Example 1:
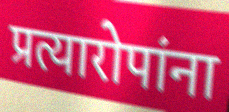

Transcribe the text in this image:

प्रत्यारोपांना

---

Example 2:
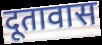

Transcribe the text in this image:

दूतावास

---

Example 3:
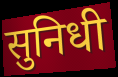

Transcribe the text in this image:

सुनिधी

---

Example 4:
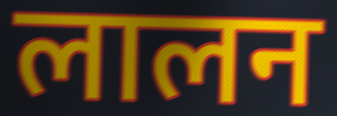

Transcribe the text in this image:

लालन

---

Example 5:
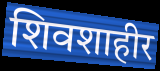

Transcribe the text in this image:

शिवशाहीर